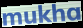
mukha